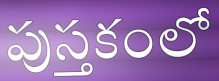
పుస్తకంలో